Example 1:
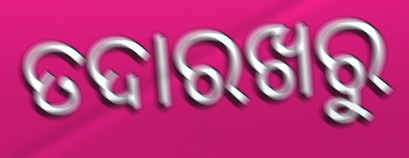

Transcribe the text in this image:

ତଦାରଖରୁ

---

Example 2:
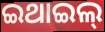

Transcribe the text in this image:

ଇଥାଇଲ୍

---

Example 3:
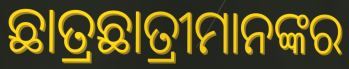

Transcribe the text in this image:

ଛାତ୍ରଛାତ୍ରୀମାନଙ୍କର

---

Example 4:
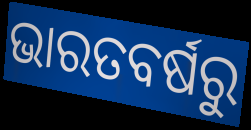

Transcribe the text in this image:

ଭାରତବର୍ଷରୁ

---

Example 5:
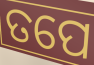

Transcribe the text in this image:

ତପେ